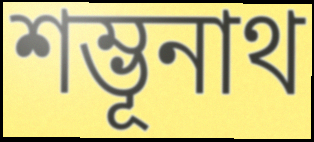
শম্ভূনাথ